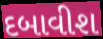
દબાવીશ